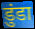
डुंडा